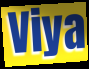
Viya